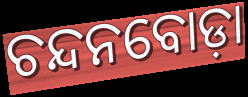
ଚନ୍ଦନବୋଡ଼ା